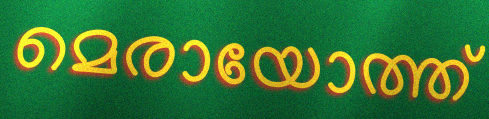
മെരായോത്ത്